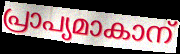
പ്രാപ്യമാകാന്